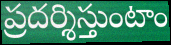
ప్రదర్శిస్తుంటాం